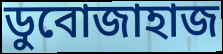
ডুবোজাহাজ